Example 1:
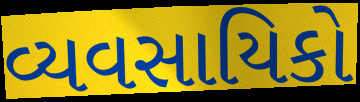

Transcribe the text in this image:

વ્યવસાયિકો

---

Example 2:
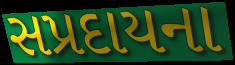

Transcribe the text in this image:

સપ્રદાયના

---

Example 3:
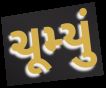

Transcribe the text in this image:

ચૂમ્યું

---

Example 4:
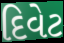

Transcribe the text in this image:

દિવેટ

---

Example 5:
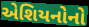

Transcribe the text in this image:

એશિયનોનો